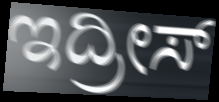
ಇದ್ರೀಸ್